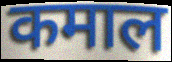
कमाल